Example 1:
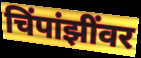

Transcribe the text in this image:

चिंपांझींवर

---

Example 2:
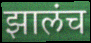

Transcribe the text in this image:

झालंच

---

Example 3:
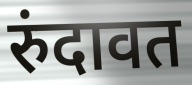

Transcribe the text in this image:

रुंदावत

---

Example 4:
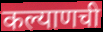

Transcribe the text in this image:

कल्याणची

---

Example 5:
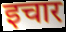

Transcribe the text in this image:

इचार